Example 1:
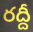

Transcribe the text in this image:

రద్దీ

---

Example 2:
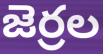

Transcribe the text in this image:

జెర్రల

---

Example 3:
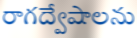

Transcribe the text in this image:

రాగద్వేషాలను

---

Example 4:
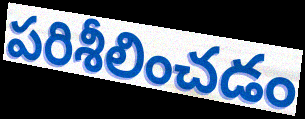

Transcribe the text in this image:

పరిశీలించడం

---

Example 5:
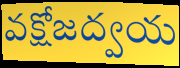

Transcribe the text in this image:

వక్షోజద్వయ